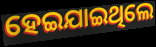
ହେଇଯାଇଥିଲେ